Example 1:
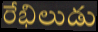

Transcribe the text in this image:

రేభిలుడు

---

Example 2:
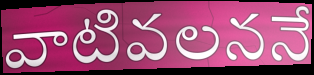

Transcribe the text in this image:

వాటివలననే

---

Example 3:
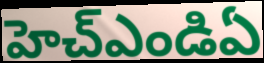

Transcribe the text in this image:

హెచ్ఎండిఏ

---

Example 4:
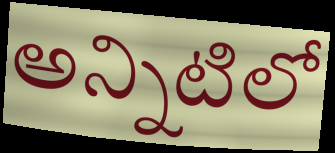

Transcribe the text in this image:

అన్నిటిలో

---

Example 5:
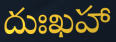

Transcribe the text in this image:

దుఃఖహా